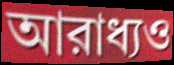
আরাধ্যও